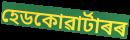
হেডকোৱাৰ্টাৰৰ